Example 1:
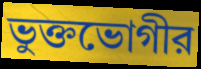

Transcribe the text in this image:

ভুক্তভোগীর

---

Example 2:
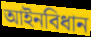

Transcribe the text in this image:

আইনবিধান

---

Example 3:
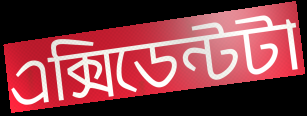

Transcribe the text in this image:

এক্সিডেন্টটা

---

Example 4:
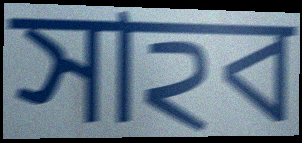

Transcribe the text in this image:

সাহব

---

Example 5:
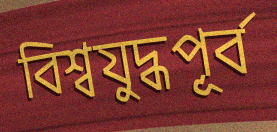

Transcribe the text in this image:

বিশ্বযুদ্ধপূর্ব